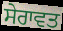
ਸੇਰਾਵਤ